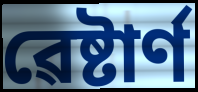
ৱেষ্টাৰ্ণ